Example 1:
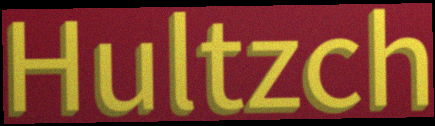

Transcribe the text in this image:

Hultzch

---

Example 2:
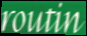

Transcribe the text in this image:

routin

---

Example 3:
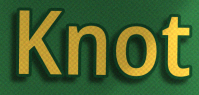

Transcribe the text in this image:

Knot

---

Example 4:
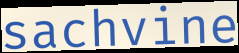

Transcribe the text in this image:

sachvine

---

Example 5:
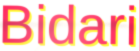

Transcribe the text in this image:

Bidari